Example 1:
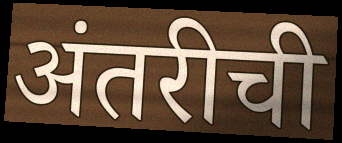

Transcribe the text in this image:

अंतरीची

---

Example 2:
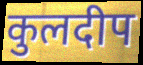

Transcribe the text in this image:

कुलदीप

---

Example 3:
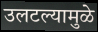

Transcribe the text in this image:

उलटल्यामुळे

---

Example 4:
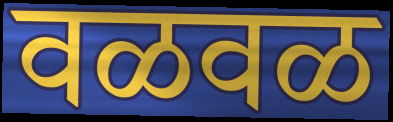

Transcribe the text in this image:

वळवळ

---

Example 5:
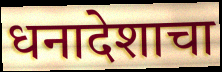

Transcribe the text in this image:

धनादेशाचा